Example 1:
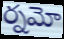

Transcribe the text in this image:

ర్నమో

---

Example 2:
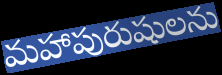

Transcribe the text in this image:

మహాపురుషులను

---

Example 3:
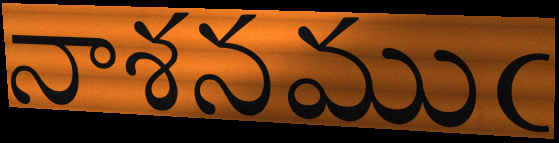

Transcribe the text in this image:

నాశనముఁ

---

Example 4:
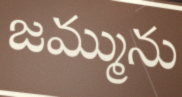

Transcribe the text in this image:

జమ్మును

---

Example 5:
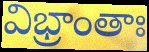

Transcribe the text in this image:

విభ్రాంతాః